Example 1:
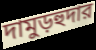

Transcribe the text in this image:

দামুড়হুদার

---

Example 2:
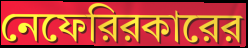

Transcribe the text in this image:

নেফেরিরকারের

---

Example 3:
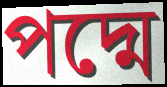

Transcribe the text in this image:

পদ্মে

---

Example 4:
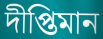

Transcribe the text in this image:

দীপ্তিমান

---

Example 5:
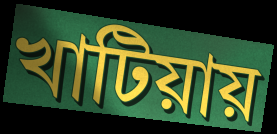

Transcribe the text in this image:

খাটিয়ায়